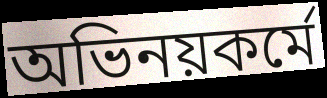
অভিনয়কর্মে